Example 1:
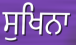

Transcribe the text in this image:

ਸੁਖਿਨਾ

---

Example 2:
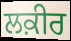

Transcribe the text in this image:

ਲਕ਼ੀਰ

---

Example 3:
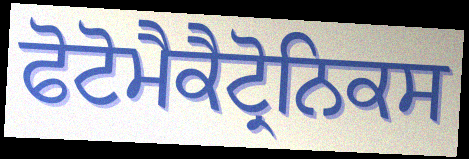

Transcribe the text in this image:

ਫੋਟੋਮੈਕੈਟ੍ਰੋਨਿਕਸ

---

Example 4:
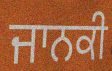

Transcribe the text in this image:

ਜਾਨਕੀ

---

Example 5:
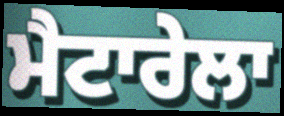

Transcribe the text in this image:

ਮੈਟਾਰੇਲਾ